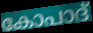
കോപാദ്